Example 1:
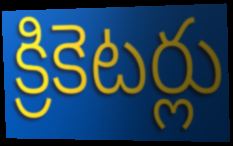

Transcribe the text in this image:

క్రికెటర్లు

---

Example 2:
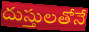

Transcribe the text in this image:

దుస్తులతోనే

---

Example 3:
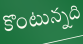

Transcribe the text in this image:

కొంటున్నది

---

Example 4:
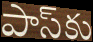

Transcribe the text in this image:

పాస్‌కు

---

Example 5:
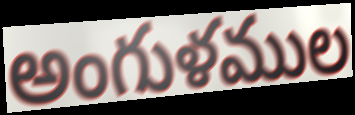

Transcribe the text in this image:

అంగుళముల